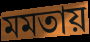
মমতায়